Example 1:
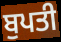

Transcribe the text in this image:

ਬੁਪਤੀ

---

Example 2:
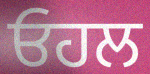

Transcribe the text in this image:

ਓਹਲ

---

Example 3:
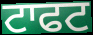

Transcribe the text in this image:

ਟਾਫਟ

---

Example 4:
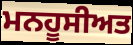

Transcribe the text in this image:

ਮਨਹੂਸੀਅਤ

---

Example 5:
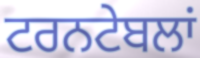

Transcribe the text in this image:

ਟਰਨਟੇਬਲਾਂ